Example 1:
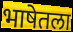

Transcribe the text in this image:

भाषेतला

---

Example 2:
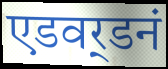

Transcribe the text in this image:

एडवर्डनं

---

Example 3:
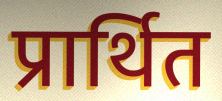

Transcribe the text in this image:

प्रार्थित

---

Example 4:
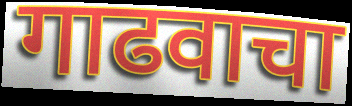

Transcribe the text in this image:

गाढवाचा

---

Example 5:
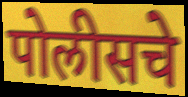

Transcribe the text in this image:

पोलीसचे